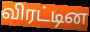
விரட்டின